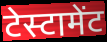
टेस्टामेंट